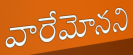
వారేమోనని